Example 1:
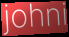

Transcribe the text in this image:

johni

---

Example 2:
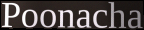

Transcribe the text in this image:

Poonacha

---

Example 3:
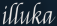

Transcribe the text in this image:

illuka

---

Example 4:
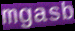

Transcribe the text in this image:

mgasb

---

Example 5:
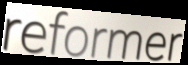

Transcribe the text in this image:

reformer